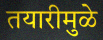
तयारीमुळे